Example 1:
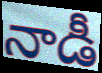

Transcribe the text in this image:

నాడీ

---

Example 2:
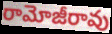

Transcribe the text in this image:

రామోజీరావు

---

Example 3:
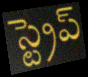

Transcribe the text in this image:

స్ట్రెప్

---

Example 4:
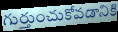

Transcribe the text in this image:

గుర్తుంచుకోవడానికి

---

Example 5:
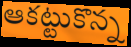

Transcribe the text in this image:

ఆకట్టుకొన్న